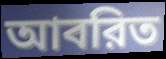
আবরিত